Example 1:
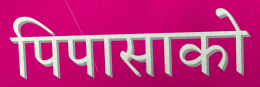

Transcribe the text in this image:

पिपासाको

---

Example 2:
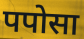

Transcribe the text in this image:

पपोसा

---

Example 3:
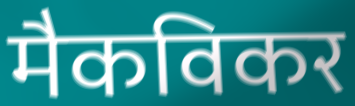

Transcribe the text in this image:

मैकविकर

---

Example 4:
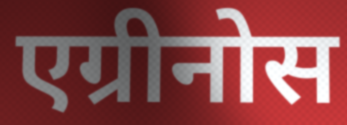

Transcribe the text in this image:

एग्रीनोस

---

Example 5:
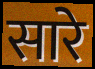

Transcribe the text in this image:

सारे